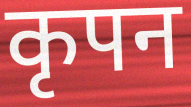
कृपन